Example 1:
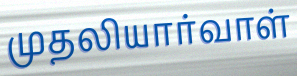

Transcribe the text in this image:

முதலியார்வாள்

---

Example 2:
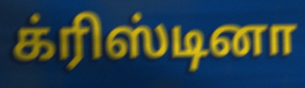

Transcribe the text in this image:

க்ரிஸ்டினா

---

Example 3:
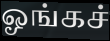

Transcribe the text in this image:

ஓங்கச்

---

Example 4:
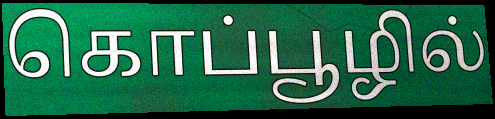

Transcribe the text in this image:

கொப்பூழில்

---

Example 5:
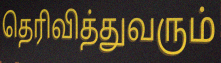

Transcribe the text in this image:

தெரிவித்துவரும்